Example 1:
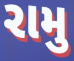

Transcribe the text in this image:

રામુ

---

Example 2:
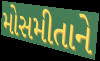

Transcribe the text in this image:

મોસમીતાને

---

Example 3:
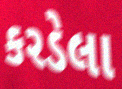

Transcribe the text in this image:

કરડેલા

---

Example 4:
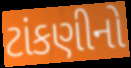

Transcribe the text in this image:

ટાંકણીનો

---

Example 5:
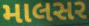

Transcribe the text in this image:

માલસર